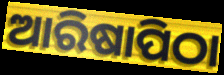
ଆରିଷାପିଠା